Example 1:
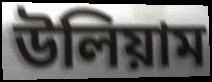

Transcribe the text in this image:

উলিয়াম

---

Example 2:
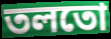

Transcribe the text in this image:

তলতো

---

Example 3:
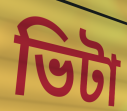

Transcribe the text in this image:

ভিটা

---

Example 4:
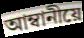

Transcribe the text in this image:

আম্বানীয়ে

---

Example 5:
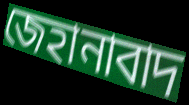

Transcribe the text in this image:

জেহানাবাদ